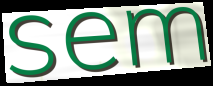
sem